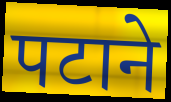
पटाने